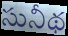
సునీథ